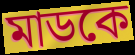
মাডকে